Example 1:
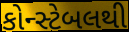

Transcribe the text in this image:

કોન્સ્ટેબલથી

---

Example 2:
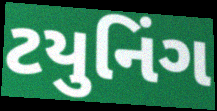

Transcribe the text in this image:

ટયુનિંગ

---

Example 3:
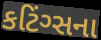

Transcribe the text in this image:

કટિંગ્સના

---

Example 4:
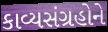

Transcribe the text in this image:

કાવ્યસંગ્રહોને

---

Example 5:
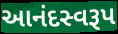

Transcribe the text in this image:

આનંદસ્વરૂપ